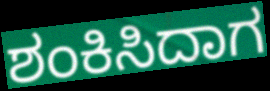
ಶಂಕಿಸಿದಾಗ